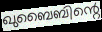
ഖുബൈബിന്റെ